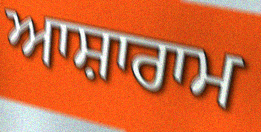
ਆਸ਼ਾਰਾਮ